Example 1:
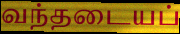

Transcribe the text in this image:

வந்தடையப்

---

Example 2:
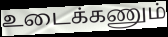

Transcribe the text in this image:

உடைக்கணும்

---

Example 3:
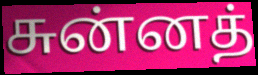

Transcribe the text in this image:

சுன்னத்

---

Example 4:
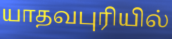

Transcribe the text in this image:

யாதவபுரியில்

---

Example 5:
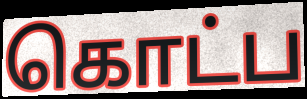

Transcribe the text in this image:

கொட்ப